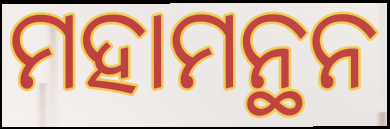
ମହାମନ୍ଥନ